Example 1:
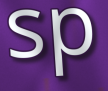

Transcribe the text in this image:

sp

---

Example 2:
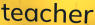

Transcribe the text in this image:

teacher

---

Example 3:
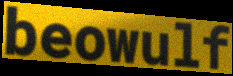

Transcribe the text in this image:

beowulf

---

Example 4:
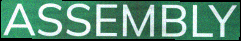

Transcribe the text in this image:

ASSEMBLY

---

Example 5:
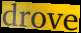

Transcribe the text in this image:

drove